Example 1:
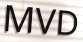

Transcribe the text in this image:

MVD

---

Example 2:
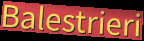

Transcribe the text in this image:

Balestrieri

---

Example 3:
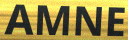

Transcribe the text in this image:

AMNE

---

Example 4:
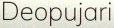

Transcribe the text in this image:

Deopujari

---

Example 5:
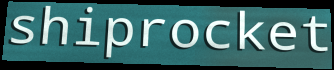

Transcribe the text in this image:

shiprocket